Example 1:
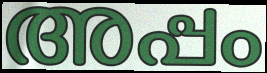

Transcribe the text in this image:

അപ്പം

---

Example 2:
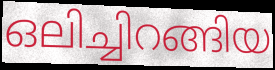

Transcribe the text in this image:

ഒലിച്ചിറങ്ങിയ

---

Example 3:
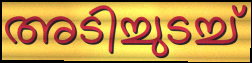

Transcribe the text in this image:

അടിച്ചുടച്ച്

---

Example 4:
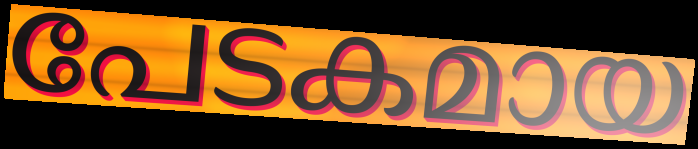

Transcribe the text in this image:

പേടകമായ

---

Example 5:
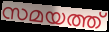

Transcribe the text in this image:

സമയത്ത്